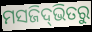
ମସଜିଦ୍‌ଭିତରୁ